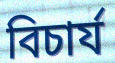
বিচাৰ্য